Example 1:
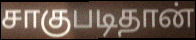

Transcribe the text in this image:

சாகுபடிதான்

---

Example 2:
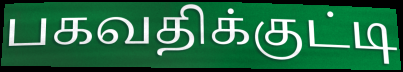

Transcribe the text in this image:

பகவதிக்குட்டி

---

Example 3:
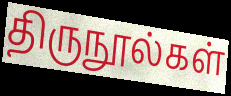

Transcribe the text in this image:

திருநூல்கள்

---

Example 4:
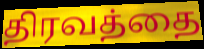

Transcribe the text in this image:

திரவத்தை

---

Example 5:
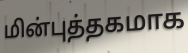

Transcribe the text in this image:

மின்புத்தகமாக